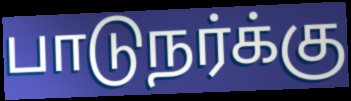
பாடுநர்க்கு